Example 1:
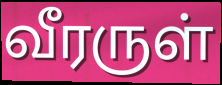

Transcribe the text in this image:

வீரருள்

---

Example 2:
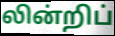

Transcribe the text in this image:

லின்றிப்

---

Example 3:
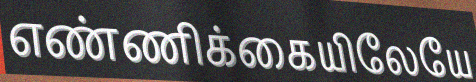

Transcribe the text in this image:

எண்ணிக்கையிலேயே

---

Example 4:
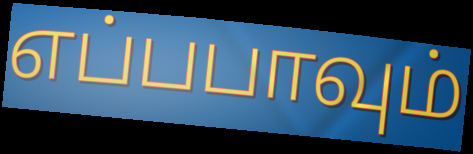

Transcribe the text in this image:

எப்பபாவும்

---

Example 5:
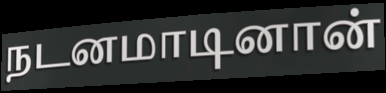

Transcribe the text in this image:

நடனமாடினான்